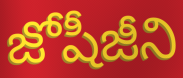
జోషీజీని